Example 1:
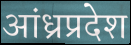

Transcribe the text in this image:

आंध्रप्रदेश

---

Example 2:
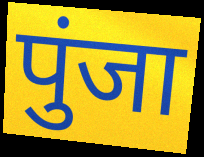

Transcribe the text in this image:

पुंजा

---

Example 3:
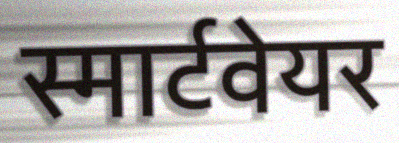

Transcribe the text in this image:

स्मार्टवेयर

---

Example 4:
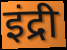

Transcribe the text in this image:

इंद्री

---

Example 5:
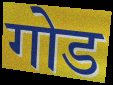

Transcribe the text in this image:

गोड